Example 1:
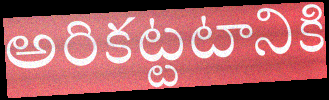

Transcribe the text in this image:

అరికట్టటానికి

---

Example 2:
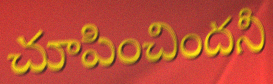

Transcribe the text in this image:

చూపించిందనీ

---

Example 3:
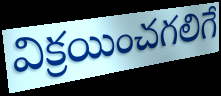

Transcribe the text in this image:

విక్రయించగలిగే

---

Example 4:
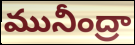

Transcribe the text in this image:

మునీంద్రా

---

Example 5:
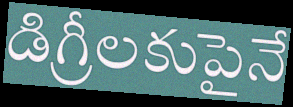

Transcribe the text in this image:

డిగ్రీలకుపైనే